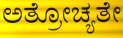
ಅತ್ರೋಚ್ಯತೇ